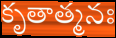
కృతాత్మనః